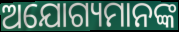
ଅଯୋଗ୍ୟମାନଙ୍କ